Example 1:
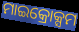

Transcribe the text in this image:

ମାଇକ୍ରୋକ୍ସମ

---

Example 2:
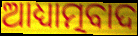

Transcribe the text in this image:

ଆଧ୍ୟାତ୍ମବାଦ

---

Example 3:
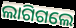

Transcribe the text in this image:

ଲାଗିଗଲେ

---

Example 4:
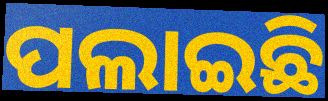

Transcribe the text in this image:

ପଲାଇଛି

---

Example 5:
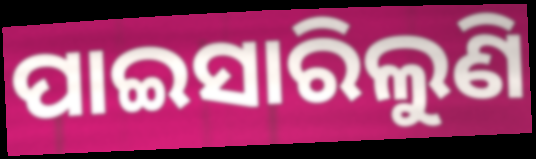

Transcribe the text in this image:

ପାଇସାରିଲୁଣି